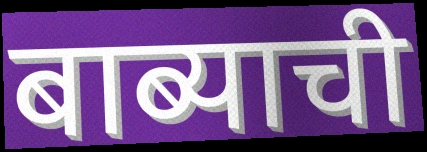
बाब्याची